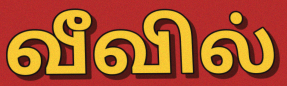
வீவில்